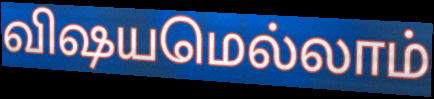
விஷயமெல்லாம்